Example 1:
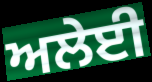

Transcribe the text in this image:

ਅਲੇਈ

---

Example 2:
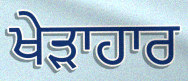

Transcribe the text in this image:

ਖੇੜਾਹਾਰ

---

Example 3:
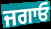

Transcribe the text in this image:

ਜਗਾਓ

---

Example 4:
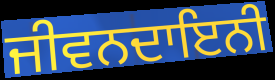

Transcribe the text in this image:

ਜੀਵਨਦਾਇਨੀ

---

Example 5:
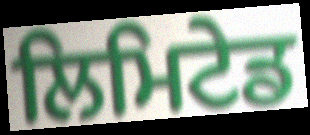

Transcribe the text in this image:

ਲਿਮਿਟੇਡ